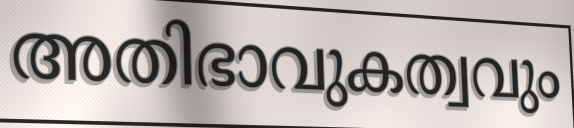
അതിഭാവുകത്വവും